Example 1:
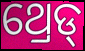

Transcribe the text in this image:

ଥ୍ରେଡ୍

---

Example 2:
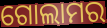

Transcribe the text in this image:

ଗୋଲାମର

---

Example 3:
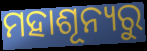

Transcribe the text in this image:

ମହାଶୂନ୍ୟରୁ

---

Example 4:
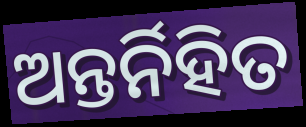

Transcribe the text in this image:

ଅନ୍ତର୍ନିହିତ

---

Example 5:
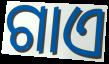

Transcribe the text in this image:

ଗାଏ